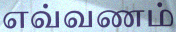
எவ்வணம்